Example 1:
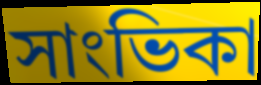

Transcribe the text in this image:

সাংভিকা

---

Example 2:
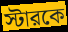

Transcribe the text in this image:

স্টারকে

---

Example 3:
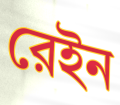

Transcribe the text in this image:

রেইন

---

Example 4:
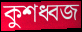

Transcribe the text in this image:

কুশধ্বজ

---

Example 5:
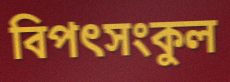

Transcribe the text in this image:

বিপৎসংকুল